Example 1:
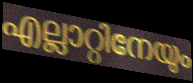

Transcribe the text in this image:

എല്ലാറ്റിനേയും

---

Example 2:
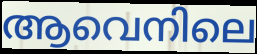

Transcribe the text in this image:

ആവെനിലെ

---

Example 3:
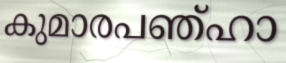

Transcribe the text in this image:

കുമാരപഞ്ഹാ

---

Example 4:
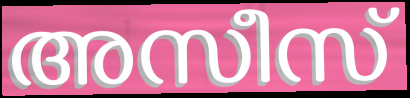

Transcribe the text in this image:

അസീസ്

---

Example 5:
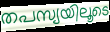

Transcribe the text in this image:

തപസ്യയിലൂടെ